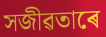
সজীৱতাৰে